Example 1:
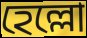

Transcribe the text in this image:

হেল্লো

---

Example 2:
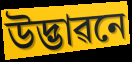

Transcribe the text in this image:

উদ্ভাৱনে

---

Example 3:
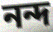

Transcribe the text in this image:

নন্দ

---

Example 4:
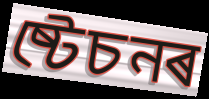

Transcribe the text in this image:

ষ্টেচনৰ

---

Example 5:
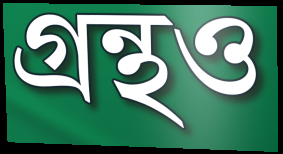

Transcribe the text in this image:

গ্ৰন্থও